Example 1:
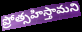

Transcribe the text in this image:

ప్రోత్సహిస్తామని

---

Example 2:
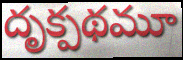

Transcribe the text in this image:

దృక్పథమూ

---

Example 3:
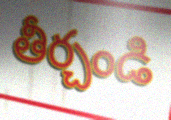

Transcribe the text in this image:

తీర్చండి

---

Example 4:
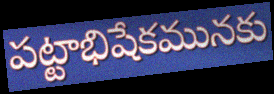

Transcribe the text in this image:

పట్టాభిషేకమునకు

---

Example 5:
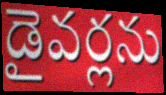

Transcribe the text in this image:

డైవర్లను